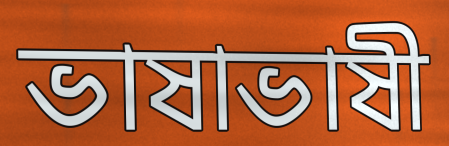
ভাষাভাষী